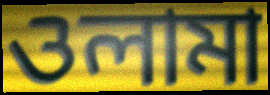
ওলামা